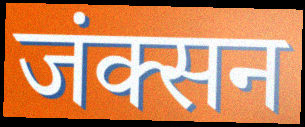
जंक्सन